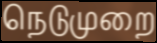
நெடுமுறை